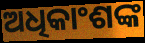
ଅଧିକାଂଶଙ୍କ